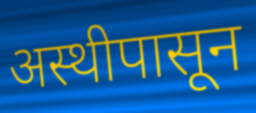
अस्थीपासून